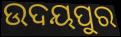
ଉଦୟପୁର